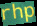
rhp